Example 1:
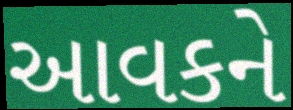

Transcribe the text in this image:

આવકને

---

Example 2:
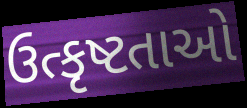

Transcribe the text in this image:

ઉત્કૃષ્ટતાઓ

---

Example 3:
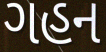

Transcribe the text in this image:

ગહન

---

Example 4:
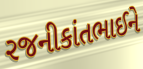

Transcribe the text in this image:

રજનીકાંતભાઈને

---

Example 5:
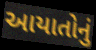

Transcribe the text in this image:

આયાતોનું